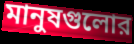
মানুষগুলোর